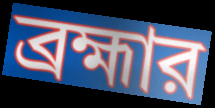
ব্রহ্মার